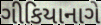
ગીકિયાનાગે